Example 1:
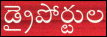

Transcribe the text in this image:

డ్రైపోర్టుల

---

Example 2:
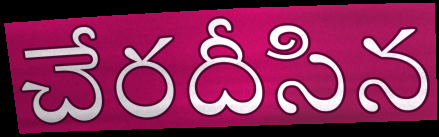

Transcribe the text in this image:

చేరదీసిన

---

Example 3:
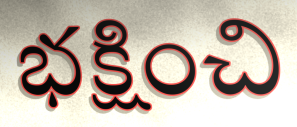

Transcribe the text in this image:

భక్షించి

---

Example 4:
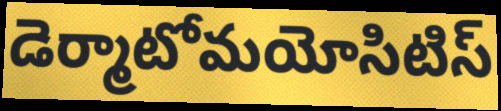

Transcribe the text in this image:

డెర్మాటోమయోసిటిస్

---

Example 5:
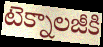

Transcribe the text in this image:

టెక్నాలజీకి